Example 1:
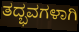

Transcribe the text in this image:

ತದ್ಭವಗಳಾಗಿ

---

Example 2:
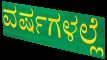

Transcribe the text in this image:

ವರ್ಷಗಳಲ್ಲೆ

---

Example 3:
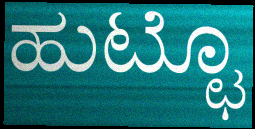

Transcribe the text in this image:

ಹುಟ್ಟೊ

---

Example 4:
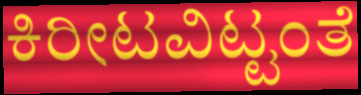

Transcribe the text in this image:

ಕಿರೀಟವಿಟ್ಟಂತೆ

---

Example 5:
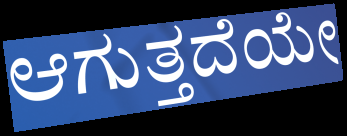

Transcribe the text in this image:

ಆಗುತ್ತದೆಯೇ